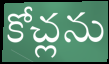
కోచ్లను